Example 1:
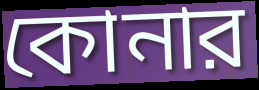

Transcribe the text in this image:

কোনার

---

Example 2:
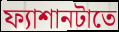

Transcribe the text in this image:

ফ্যাশানটাতে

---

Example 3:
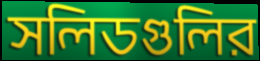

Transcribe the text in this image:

সলিডগুলির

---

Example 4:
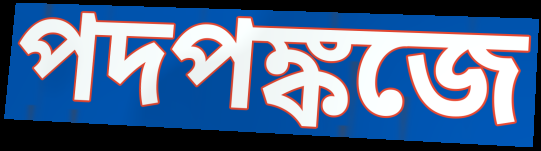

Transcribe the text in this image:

পদপঙ্কজে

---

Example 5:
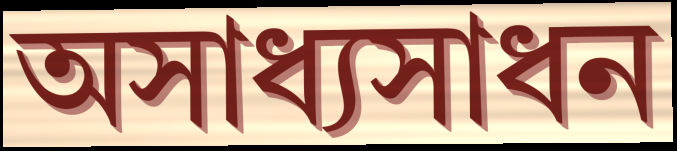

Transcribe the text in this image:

অসাধ্যসাধন